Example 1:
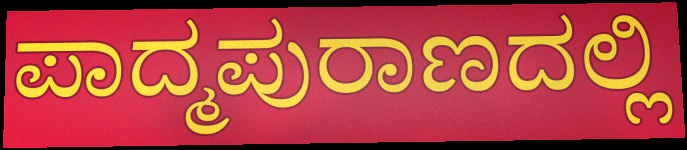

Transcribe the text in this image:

ಪಾದ್ಮಪುರಾಣದಲ್ಲಿ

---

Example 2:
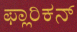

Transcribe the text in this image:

ಫ್ಲಾರಿಕನ್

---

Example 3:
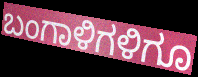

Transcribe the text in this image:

ಬಂಗಾಳಿಗಳಿಗೂ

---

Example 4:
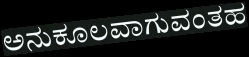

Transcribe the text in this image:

ಅನುಕೂಲವಾಗುವಂತಹ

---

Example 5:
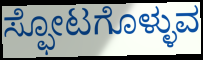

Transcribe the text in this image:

ಸ್ಫೋಟಗೊಳ್ಳುವ